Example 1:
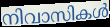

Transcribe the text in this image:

നിവാസികൾ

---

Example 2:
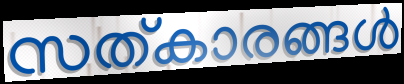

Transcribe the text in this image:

സത്കാരങ്ങൾ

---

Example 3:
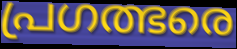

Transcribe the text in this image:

പ്രഗത്ഭരെ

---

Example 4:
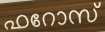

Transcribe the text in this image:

ഫറോസ്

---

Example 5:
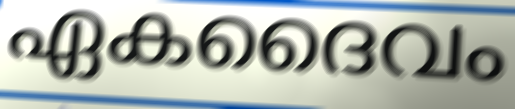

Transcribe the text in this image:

ഏകദൈവം